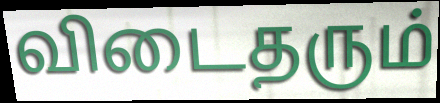
விடைதரும்